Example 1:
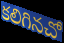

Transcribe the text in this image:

కలిగినచో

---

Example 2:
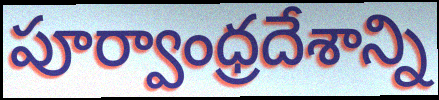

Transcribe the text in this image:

పూర్వాంధ్రదేశాన్ని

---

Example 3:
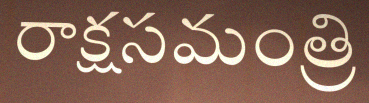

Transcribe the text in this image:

రాక్షసమంత్రి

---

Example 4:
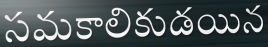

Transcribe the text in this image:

సమకాలికుడయిన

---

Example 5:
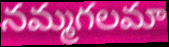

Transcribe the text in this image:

నమ్మగలమా